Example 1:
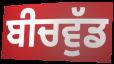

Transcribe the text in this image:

ਬੀਚਵੁੱਡ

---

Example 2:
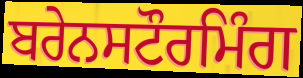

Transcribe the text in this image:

ਬਰੇਨਸਟੌਰਮਿੰਗ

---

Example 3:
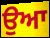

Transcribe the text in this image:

ਉਆ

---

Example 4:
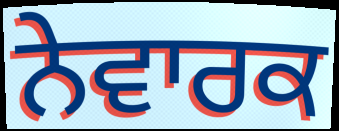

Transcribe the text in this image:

ਨੇਵਾਰਕ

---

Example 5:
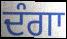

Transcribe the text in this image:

ਦੰਗਾ